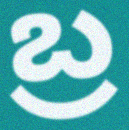
బ్ర